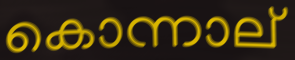
കൊന്നാല്